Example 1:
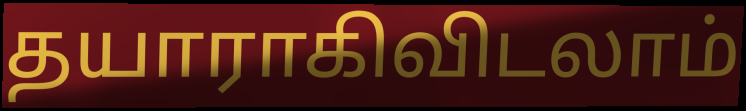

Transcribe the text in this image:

தயாராகிவிடலாம்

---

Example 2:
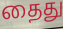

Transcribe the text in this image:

தைது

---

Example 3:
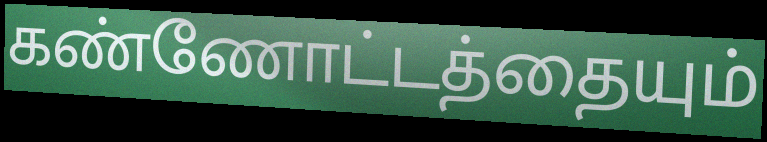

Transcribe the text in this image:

கண்ணோட்டத்தையும்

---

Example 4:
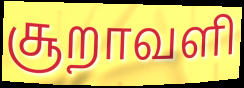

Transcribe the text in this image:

சூறாவளி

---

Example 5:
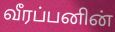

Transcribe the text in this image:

வீரப்பனின்